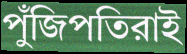
পুঁজিপতিরাই